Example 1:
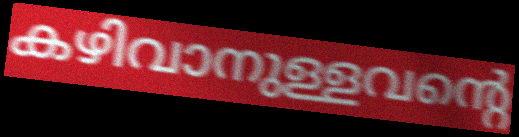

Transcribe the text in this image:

കഴിവാനുള്ളവന്റെ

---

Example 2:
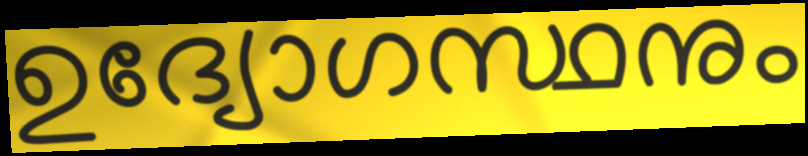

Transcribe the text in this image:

ഉദ്യോഗസ്ഥനും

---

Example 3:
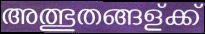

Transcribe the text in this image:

അത്ഭുതങ്ങള്ക്ക്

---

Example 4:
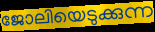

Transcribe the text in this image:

ജോലിയെടുക്കുന്ന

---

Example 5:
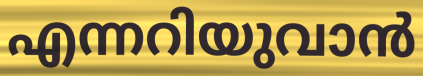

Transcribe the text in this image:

എന്നറിയുവാൻ